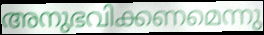
അനുഭവിക്കണമെന്നു